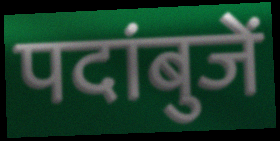
पदांबुजें